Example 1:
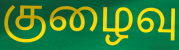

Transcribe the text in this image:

குழைவு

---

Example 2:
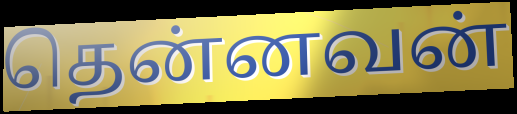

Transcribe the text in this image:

தென்னவன்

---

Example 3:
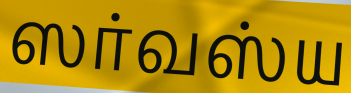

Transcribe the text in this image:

ஸர்வஸ்ய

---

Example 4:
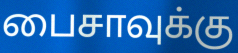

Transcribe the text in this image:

பைசாவுக்கு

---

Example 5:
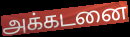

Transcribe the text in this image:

அக்கடனை